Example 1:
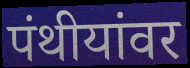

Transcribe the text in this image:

पंथीयांवर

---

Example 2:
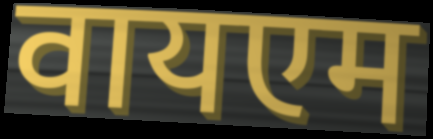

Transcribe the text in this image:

वायएम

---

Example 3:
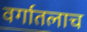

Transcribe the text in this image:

वर्गातलाच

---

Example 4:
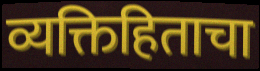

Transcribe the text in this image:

व्यक्तिहिताचा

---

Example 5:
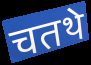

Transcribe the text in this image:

चतथे